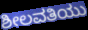
ಶೀಲವತಿಯು